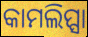
କାମଲିପ୍ସା